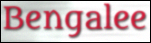
Bengalee